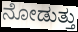
ನೋಡುತ್ತು